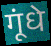
गूंधे